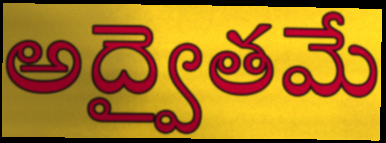
అద్వైతమే